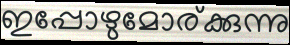
ഇപ്പോഴുമോര്ക്കുന്നു